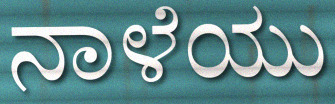
ನಾಳೆಯು